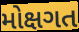
મોક્ષગત